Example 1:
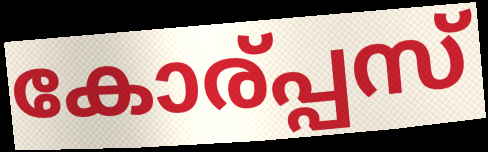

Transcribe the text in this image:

കോര്പ്പസ്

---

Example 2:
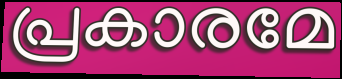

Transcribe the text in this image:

പ്രകാരമേ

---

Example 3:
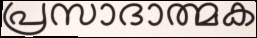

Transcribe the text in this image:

പ്രസാദാത്മക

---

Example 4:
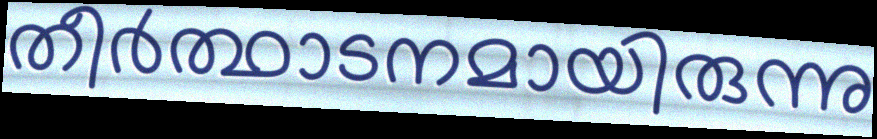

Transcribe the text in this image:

തീർത്ഥാടനമായിരുന്നു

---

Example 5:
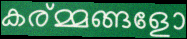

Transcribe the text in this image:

കര്മ്മങ്ങളോ